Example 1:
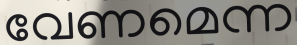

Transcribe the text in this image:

വേണമെന്ന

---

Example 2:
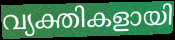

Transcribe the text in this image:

വ്യക്തികളായി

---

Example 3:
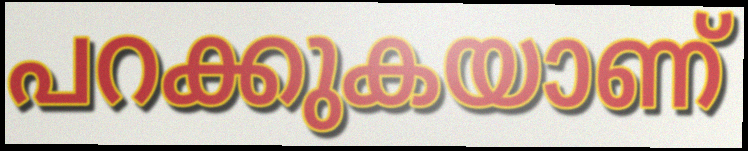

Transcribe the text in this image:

പറക്കുകയാണ്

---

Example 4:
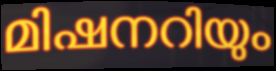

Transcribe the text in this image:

മിഷനറിയും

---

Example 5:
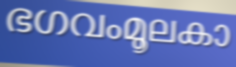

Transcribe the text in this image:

ഭഗവംമൂലകാ